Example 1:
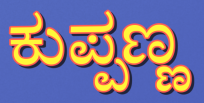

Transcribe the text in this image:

ಕುಪ್ಪಣ್ಣ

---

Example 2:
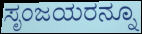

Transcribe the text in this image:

ಸೃಂಜಯರನ್ನೂ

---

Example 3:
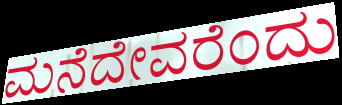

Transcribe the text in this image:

ಮನೆದೇವರೆಂದು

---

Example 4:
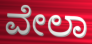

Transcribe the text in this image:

ವೇಲಾ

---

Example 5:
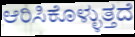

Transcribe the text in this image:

ಆರಿಸಿಕೊಳ್ಳುತ್ತದೆ